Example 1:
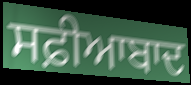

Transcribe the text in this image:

ਸਫ਼ੀਆਬਾਦ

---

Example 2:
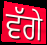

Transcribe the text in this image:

ਵੱਗੇ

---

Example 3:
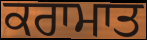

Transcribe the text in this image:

ਕਰਾਮਾਤ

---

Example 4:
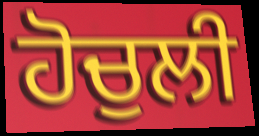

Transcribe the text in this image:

ਹੋਚੁਲੀ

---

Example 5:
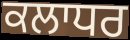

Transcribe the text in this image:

ਕਲਾਧਰ